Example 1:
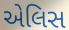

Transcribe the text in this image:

એલિસ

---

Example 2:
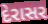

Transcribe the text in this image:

દેરાસર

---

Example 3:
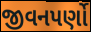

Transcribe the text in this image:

જીવનપર્ણો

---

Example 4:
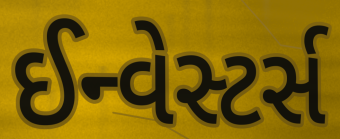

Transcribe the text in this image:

ઈન્વેસ્ટર્સ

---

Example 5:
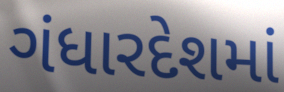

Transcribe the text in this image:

ગંધારદેશમાં